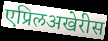
एप्रिलअखेरीस